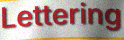
Lettering